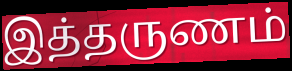
இத்தருணம்